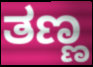
ತಣ್ಣ